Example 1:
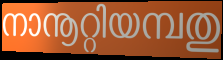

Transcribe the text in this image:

നാനൂറ്റിയമ്പതു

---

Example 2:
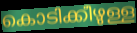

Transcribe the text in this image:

കൊടിക്കീഴുള്ള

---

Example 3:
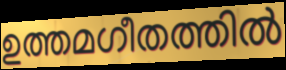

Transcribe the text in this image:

ഉത്തമഗീതത്തിൽ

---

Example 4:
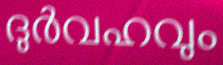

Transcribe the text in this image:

ദുർവഹവും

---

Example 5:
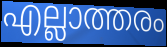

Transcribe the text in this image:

എല്ലാത്തരം